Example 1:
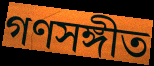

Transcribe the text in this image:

গণসঙ্গীত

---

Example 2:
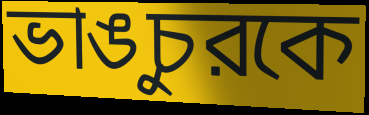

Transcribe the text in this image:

ভাঙচুরকে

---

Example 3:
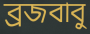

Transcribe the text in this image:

ব্রজবাবু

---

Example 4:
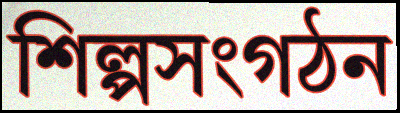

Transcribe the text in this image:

শিল্পসংগঠন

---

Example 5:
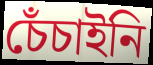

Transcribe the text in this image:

চেঁচাইনি